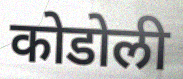
कोडोली